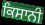
ਕਿਸਾਨੀ